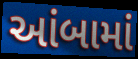
આંબામાં